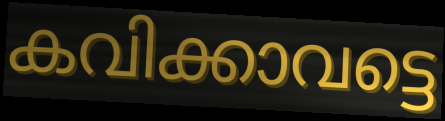
കവിക്കാവട്ടെ